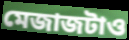
মেজাজটাও